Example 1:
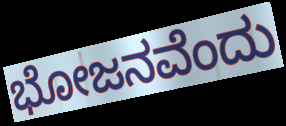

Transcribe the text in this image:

ಭೋಜನವೆಂದು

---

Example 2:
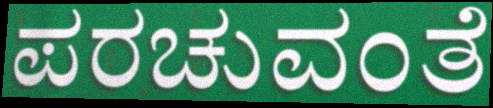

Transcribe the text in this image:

ಪರಚುವಂತೆ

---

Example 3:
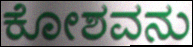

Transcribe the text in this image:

ಕೋಶವನು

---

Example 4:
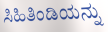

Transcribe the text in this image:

ಸಿಹಿತಿಂಡಿಯನ್ನು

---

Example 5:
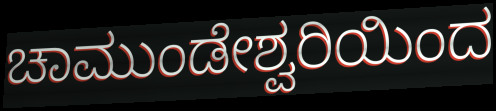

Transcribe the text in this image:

ಚಾಮುಂಡೇಶ್ವರಿಯಿಂದ